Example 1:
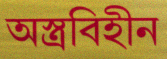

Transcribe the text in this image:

অস্ত্রবিহীন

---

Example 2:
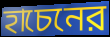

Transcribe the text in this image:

হাচেনের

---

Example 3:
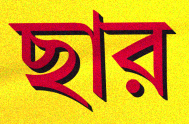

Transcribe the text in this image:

ছার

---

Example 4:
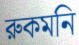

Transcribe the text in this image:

রুকমনি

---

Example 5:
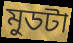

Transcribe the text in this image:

মুডটা